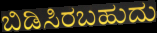
ಬಿಡಿಸಿರಬಹುದು